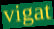
vigat